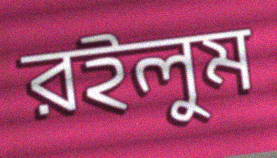
রইলুম